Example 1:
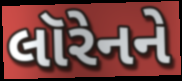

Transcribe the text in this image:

લૉરેનને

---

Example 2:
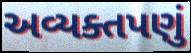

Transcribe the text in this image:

અવ્યક્તપણું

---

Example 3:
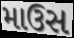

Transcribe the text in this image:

માઉસ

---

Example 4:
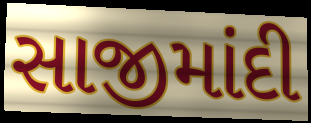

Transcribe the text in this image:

સાજીમાંદી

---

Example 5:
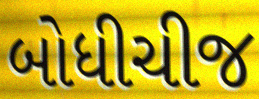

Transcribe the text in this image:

બોધીચીજ